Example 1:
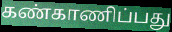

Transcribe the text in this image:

கண்காணிப்பது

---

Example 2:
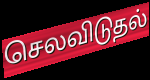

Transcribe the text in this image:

செலவிடுதல்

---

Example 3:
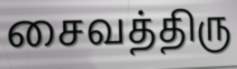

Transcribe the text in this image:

சைவத்திரு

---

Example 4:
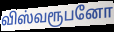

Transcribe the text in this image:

விஸ்வரூபனோ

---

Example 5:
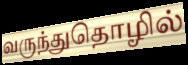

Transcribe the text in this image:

வருந்துதொழில்